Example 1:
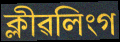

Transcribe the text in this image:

ক্লীৱলিংগ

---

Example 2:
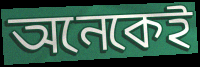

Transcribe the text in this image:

অনেকেই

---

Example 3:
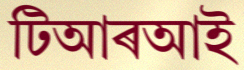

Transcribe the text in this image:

টিআৰআই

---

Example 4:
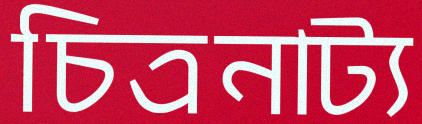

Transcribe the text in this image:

চিত্ৰনাট্য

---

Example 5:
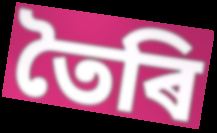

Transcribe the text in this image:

তৈৰি